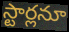
స్టార్లనూ